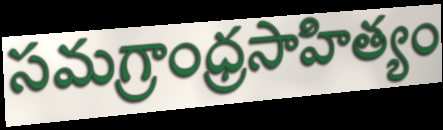
సమగ్రాంధ్రసాహిత్యం